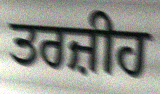
ਤਰਜ਼ੀਹ